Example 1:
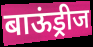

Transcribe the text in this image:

बाऊंड्रीज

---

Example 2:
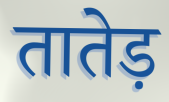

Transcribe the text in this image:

तातेड़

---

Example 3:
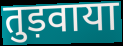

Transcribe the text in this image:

तुड़वाया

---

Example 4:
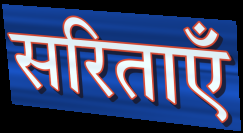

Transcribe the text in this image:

सरिताएँ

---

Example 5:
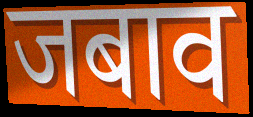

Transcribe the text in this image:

जबाव